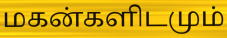
மகன்களிடமும்